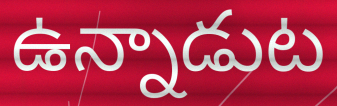
ఉన్నాడుట